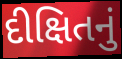
દીક્ષિતનું